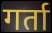
गर्ता